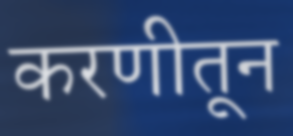
करणीतून